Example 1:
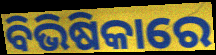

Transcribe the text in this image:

ବିଭିଷିକାରେ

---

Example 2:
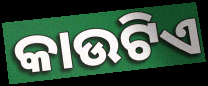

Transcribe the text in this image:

କାଉଟିଏ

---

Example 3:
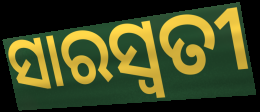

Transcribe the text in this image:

ସାରସ୍ୱତୀ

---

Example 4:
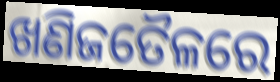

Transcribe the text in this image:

ଖଣିଜତୈଳରେ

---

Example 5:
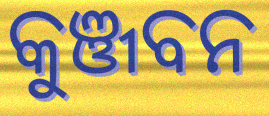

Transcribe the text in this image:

କୁଞ୍ଜବନ